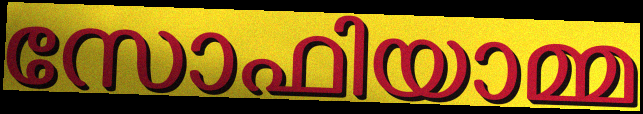
സോഫിയാമ്മ